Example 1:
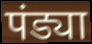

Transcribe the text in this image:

पंड्या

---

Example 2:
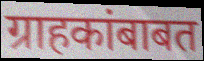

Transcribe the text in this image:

ग्राहकांबाबत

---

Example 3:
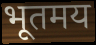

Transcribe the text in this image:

भूतमय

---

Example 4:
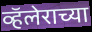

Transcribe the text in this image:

व्हॅलेराच्या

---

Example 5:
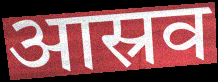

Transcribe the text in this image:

आस्रव